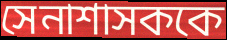
সেনাশাসককে